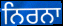
ਨਿਰਨਾ